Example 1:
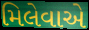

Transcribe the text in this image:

મિલેવાએ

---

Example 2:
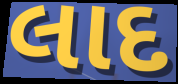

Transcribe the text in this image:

લાદ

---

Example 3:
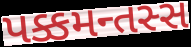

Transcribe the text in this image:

પક્કમન્તસ્સ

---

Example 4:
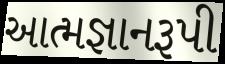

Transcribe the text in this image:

આત્મજ્ઞાનરૂપી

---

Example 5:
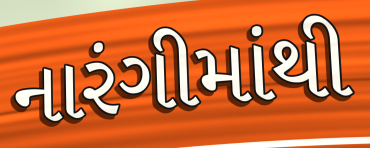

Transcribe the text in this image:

નારંગીમાંથી